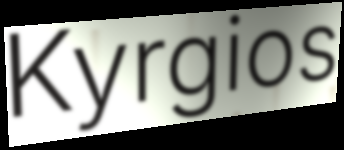
Kyrgios